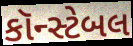
કૉન્સ્ટેબલ